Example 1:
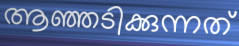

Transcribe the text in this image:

ആഞ്ഞടിക്കുന്നത്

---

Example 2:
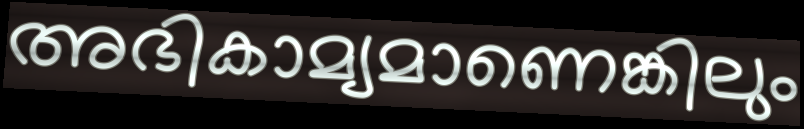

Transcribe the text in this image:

അഭികാമ്യമാണെങ്കിലും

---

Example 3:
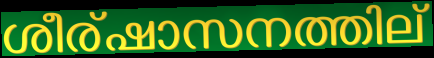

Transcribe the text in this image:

ശീര്ഷാസനത്തില്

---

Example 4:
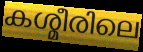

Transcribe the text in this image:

കശ്മീരിലെ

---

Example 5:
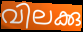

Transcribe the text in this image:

വിലക്കു